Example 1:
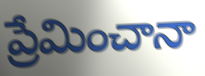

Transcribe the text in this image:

ప్రేమించానా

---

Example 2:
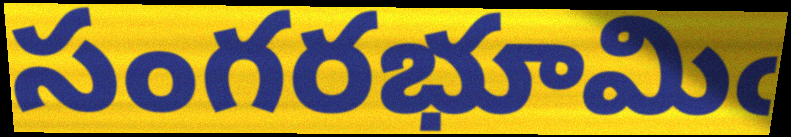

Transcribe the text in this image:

సంగరభూమిఁ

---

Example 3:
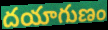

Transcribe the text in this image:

దయాగుణం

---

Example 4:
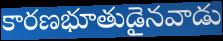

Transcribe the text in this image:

కారణభూతుడైనవాడు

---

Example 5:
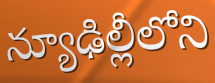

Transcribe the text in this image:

న్యూఢిల్లీలోని